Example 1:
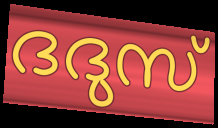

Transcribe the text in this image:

ദദുസ്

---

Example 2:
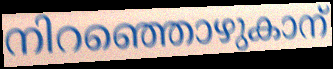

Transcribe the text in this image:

നിറഞ്ഞൊഴുകാന്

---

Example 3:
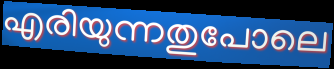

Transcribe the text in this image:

എരിയുന്നതുപോലെ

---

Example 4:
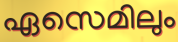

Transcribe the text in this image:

ഏസെമിലും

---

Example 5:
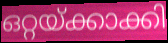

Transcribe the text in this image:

ഒറ്റയ്ക്കാക്കി